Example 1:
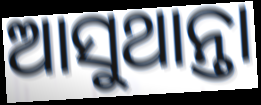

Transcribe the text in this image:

ଆସୁଥାନ୍ତା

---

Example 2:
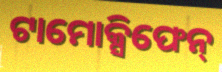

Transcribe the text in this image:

ଟାମୋକ୍ସିଫେନ୍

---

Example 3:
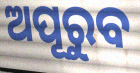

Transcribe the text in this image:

ଅପୂରୁବ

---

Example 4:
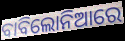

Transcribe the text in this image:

ବାବିଲୋନିଆରେ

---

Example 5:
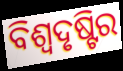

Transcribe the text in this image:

ବିଶ୍ୱଦୃଷ୍ଟିର